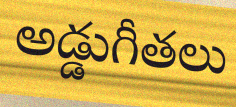
అడ్డుగీతలు